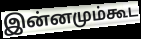
இன்னமும்கூட